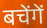
बचेंगें